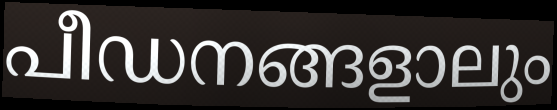
പീഡനങ്ങളാലും